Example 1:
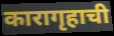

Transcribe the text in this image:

कारागृहाची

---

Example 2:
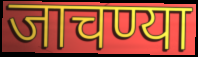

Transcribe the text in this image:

जाचण्या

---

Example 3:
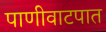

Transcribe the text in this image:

पाणीवाटपात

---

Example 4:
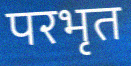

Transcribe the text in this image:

परभृत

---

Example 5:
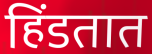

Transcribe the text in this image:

हिंडतात